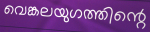
വെങ്കലയുഗത്തിന്റെ